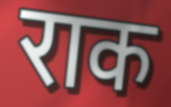
राक